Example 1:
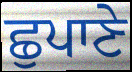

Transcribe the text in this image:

ਛੁਪਾਣੇ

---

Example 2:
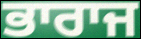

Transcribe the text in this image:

ਭਾਰਾਜ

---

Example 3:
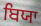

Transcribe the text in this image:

ਬਿਯਾ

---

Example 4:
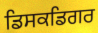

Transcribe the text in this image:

ਡਿਸਕਡਿਗਰ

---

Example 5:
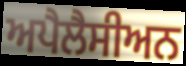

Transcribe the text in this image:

ਅਪੈਲੈਸੀਅਨ